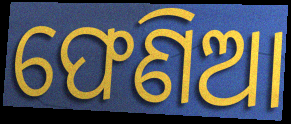
ଫେଣିଆ